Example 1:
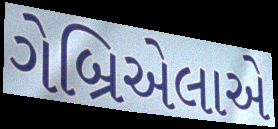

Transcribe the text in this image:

ગેબ્રિએલાએ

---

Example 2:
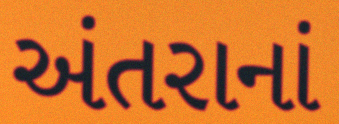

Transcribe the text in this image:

અંતરાનાં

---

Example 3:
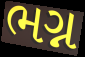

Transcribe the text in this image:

ભગ્ન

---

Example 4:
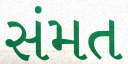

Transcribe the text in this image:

સંમત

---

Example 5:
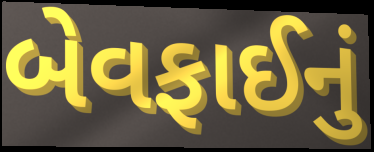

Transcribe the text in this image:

બેવફાઈનું